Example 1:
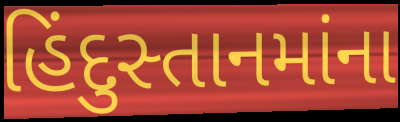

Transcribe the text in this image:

હિંદુસ્તાનમાંના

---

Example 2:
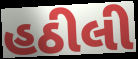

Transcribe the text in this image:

હઠીલી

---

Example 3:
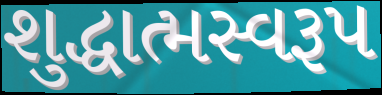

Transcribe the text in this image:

શુદ્ધાત્મસ્વરૂપ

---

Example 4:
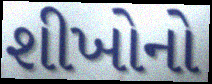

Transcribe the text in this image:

શીખોનો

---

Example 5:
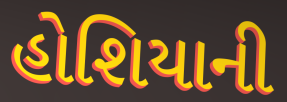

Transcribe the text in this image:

હોશિયાની